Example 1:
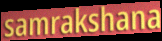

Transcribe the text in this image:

samrakshana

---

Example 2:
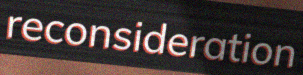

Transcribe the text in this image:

reconsideration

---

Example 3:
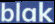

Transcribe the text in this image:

blak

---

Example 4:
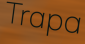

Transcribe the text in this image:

Trapa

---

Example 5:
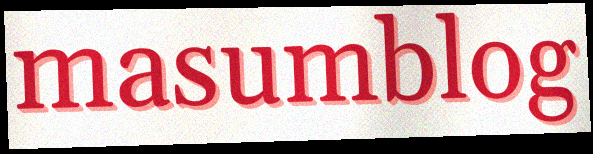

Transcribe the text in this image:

masumblog